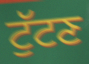
ਟੁੱਟਣ